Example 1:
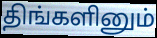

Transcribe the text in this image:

திங்களினும்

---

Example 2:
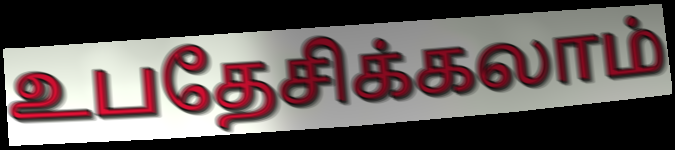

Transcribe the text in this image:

உபதேசிக்கலாம்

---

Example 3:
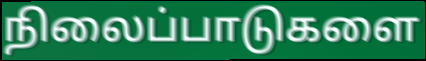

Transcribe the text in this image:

நிலைப்பாடுகளை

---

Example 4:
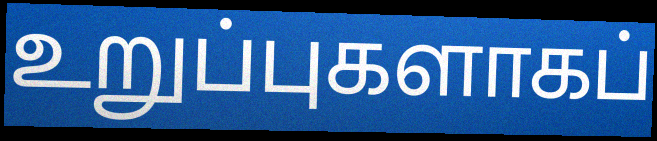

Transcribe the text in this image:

உறுப்புகளாகப்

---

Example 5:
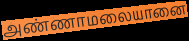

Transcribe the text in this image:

அண்ணாமலையானை